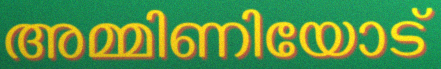
അമ്മിണിയോട്